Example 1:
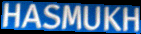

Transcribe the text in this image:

HASMUKH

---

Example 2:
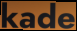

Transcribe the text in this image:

kade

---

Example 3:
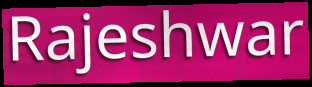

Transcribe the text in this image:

Rajeshwar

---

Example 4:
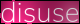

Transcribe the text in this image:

disuse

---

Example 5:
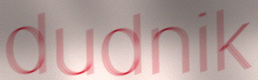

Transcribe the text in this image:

dudnik